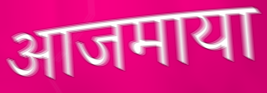
आजमाया